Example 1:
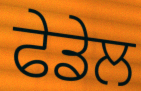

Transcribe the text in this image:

ਫੇਡੇਲ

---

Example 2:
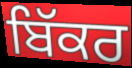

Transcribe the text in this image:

ਬਿੱਕਰ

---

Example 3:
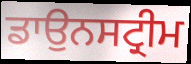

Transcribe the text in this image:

ਡਾਉਨਸਟ੍ਰੀਮ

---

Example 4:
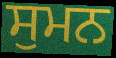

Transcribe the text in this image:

ਸੁਮਨ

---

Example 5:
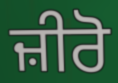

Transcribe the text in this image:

ਜ਼ੀਰੋ